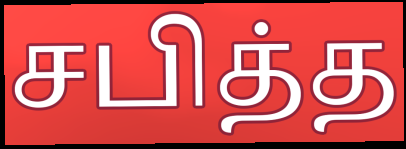
சபித்த